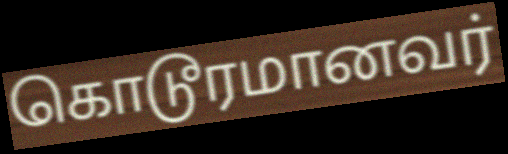
கொடூரமானவர்